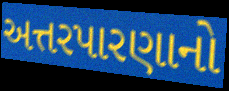
અત્તરપારણાનો